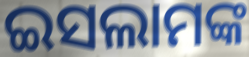
ଇସଲାମଙ୍କ